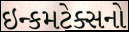
ઇન્કમટેક્સનો